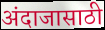
अंदाजासाठी